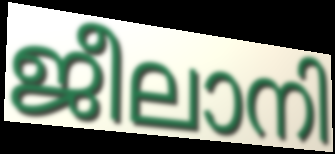
ജീലാനി